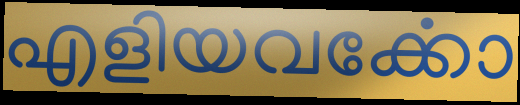
എളിയവൎക്കോ